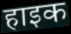
हाइक